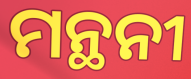
ମନ୍ଥନୀ